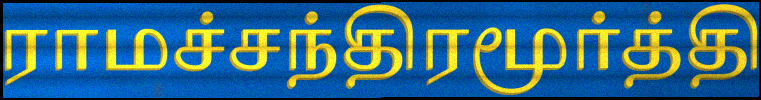
ராமச்சந்திரமூர்த்தி